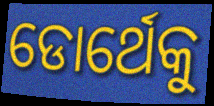
ଡୋର୍ଥେକୁ